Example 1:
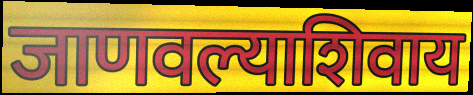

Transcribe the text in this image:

जाणवल्याशिवाय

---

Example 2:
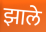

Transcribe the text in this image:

झाले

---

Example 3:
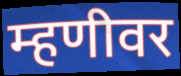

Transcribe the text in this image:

म्हणीवर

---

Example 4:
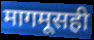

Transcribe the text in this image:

मागमूसही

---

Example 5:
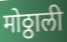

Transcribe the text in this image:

मोठ्ठाली